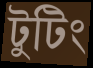
টুটিং